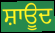
ਸ਼ਾਊਦ